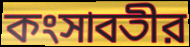
কংসাবতীর